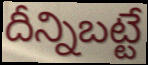
దీన్నిబట్టే